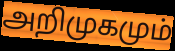
அறிமுகமும்